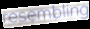
resembling